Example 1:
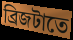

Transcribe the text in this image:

ব্রিজটাতে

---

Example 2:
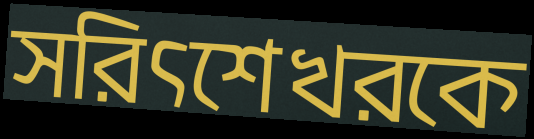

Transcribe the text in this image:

সরিৎশেখরকে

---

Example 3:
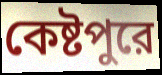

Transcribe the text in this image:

কেষ্টপুরে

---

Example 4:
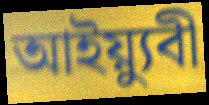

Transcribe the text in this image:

আইয়্যুবী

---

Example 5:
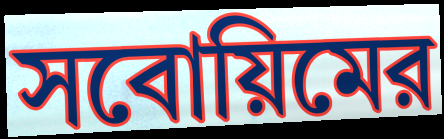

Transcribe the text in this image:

সবোয়িমের